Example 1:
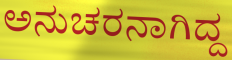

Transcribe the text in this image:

ಅನುಚರನಾಗಿದ್ದ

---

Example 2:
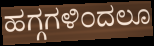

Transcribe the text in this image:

ಹಗ್ಗಗಳಿಂದಲೂ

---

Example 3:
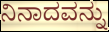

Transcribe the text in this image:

ನಿನಾದವನ್ನು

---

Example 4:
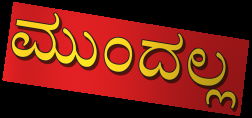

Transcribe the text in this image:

ಮುಂದಲ್ಲ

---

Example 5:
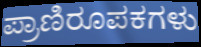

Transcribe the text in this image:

ಪ್ರಾಣಿರೂಪಕಗಳು